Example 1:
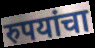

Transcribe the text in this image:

रुपयांचा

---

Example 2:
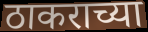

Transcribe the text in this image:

ठाकराच्या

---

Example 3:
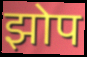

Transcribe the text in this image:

झोप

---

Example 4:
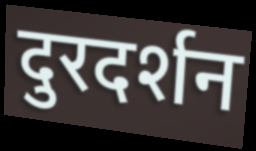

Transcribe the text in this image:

दुरदर्शन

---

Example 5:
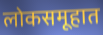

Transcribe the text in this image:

लोकसमूहात